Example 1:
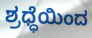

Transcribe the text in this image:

ಶ್ರಧ್ಧೆಯಿಂದ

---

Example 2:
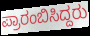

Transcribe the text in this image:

ಪ್ರಾರಂಬಿಸಿದ್ದರು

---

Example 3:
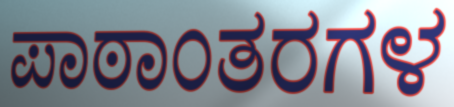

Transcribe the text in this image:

ಪಾಠಾಂತರಗಳ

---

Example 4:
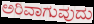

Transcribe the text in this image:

ಅರಿವಾಗುವುದು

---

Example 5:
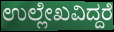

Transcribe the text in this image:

ಉಲ್ಲೇಖವಿದ್ದರೆ